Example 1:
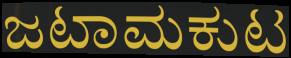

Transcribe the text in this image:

ಜಟಾಮಕುಟ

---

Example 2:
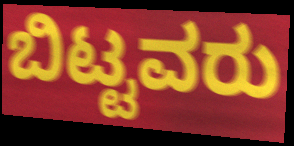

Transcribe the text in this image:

ಬಿಟ್ಟವರು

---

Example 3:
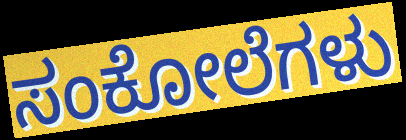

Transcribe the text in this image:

ಸಂಕೋಲೆಗಳು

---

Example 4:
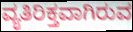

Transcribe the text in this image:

ವ್ಯತಿರಿಕ್ತವಾಗಿರುವ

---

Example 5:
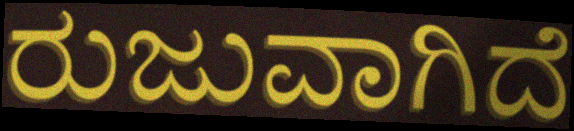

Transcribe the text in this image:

ರುಜುವಾಗಿದೆ